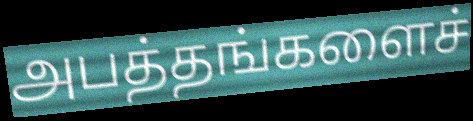
அபத்தங்களைச்